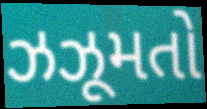
ઝઝૂમતો